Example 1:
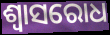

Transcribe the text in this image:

ଶ୍ୱାସରୋଧ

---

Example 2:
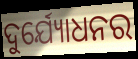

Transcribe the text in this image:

ଦୁର୍ଯ୍ଯୋଧନର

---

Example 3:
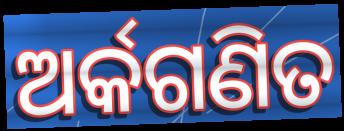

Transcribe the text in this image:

ଅର୍କଗଣିତ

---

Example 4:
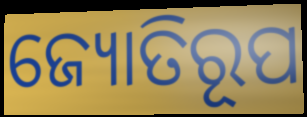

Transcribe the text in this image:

ଜ୍ୟୋତିରୂପ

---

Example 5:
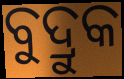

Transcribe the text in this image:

ବୁଦ୍ରୁକ